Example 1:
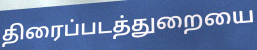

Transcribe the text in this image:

திரைப்படத்துறையை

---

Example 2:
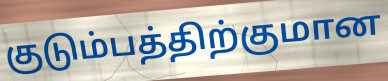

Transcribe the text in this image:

குடும்பத்திற்குமான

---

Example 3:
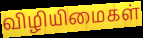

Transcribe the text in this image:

விழியிமைகள்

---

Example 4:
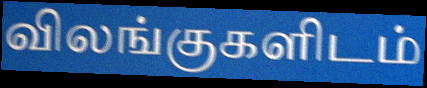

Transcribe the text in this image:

விலங்குகளிடம்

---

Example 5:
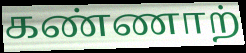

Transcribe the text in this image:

கண்ணாற்